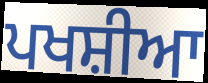
ਪਖਸ਼ੀਆ